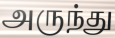
அருந்து